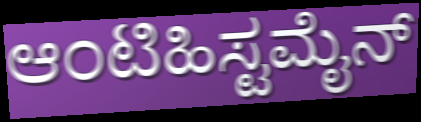
ಆಂಟಿಹಿಸ್ಟಮೈನ್